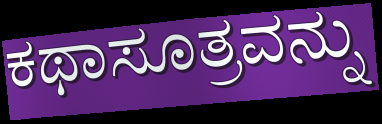
ಕಥಾಸೂತ್ರವನ್ನು